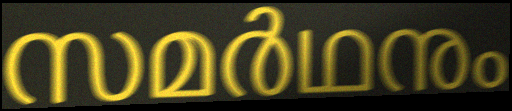
സമർഥനും